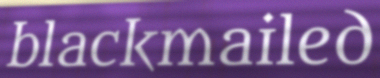
blackmailed